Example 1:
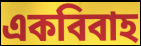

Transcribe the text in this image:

একবিবাহ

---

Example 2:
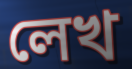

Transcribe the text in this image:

লেখ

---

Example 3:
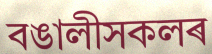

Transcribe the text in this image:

বঙালীসকলৰ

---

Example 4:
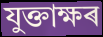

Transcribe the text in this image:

যুক্তাক্ষৰ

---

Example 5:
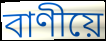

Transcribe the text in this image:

বাণীয়ে